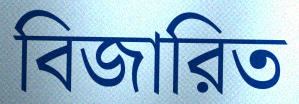
বিজারিত